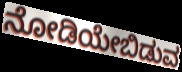
ನೋಡಿಯೇಬಿಡುವ